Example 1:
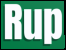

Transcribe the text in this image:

Rup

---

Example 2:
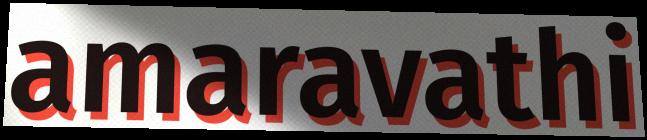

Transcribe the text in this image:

amaravathi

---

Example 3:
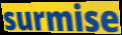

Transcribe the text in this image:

surmise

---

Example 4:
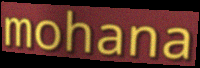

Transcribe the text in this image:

mohana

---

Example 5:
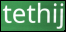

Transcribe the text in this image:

tethij